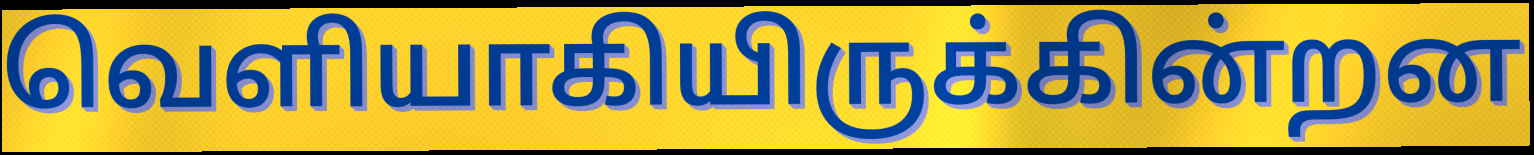
வெளியாகியிருக்கின்றன